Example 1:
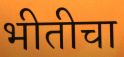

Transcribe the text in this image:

भीतीचा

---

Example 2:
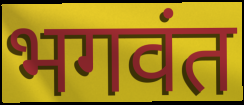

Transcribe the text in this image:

भगवंत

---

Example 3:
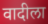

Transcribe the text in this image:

वादीला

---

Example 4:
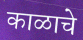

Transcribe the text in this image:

काळाचे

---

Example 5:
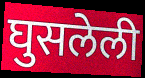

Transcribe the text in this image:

घुसलेली